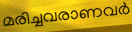
മരിച്ചവരാണവർ